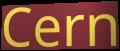
Cern